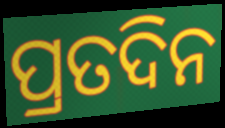
ପ୍ରତଦିନ